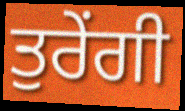
ਤੁਰੇਂਗੀ